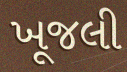
ખૂજલી